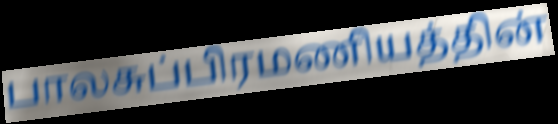
பாலசுப்பிரமணியத்தின்